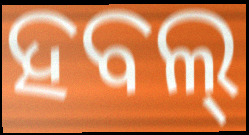
ହବଲ୍